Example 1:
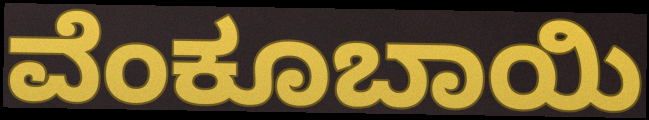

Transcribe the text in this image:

ವೆಂಕೂಬಾಯಿ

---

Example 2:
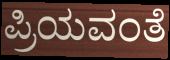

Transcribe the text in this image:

ಪ್ರಿಯವಂತೆ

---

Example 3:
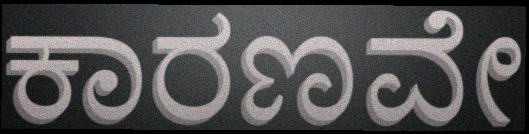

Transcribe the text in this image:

ಕಾರಣವೇ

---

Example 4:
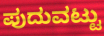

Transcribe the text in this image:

ಪುದುವಟ್ಟು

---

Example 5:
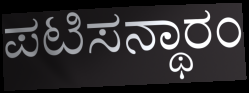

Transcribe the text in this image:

ಪಟಿಸನ್ಥಾರಂ